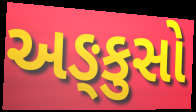
અઙ્કુસો